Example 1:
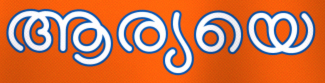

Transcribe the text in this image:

ആര്യയെ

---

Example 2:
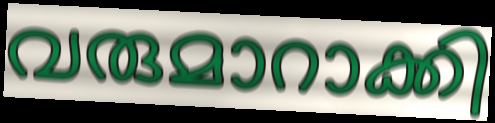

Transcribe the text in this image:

വരുമാറാക്കി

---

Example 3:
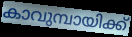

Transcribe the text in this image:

കാവുമ്പായിക്ക്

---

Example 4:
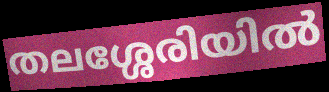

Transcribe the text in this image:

തലശ്ശേരിയിൽ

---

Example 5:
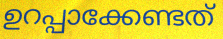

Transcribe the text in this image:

ഉറപ്പാക്കേണ്ടത്